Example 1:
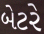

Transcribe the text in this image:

બેટરે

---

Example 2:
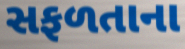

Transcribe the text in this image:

સફળતાના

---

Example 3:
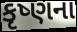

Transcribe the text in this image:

કૃષ્ણના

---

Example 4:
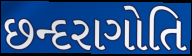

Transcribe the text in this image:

છન્દરાગોતિ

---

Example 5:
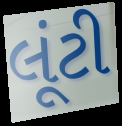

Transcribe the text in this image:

લૂંટી